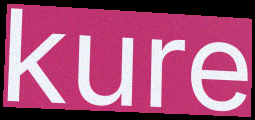
kure